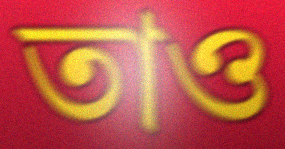
তাও